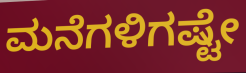
ಮನೆಗಳಿಗಷ್ಟೇ